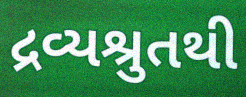
દ્રવ્યશ્રુતથી